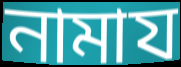
নামায